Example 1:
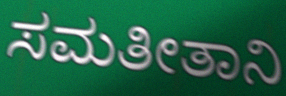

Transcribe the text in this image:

ಸಮತೀತಾನಿ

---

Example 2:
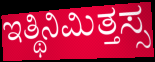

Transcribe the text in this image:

ಇತ್ಥಿನಿಮಿತ್ತಸ್ಸ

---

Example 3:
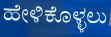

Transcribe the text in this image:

ಹೇಳಿಕೊಳ್ಳಲು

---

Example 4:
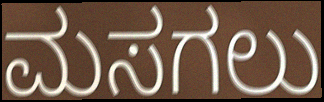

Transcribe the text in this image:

ಮಸಗಲು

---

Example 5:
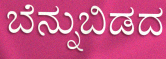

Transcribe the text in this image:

ಬೆನ್ನುಬಿಡದ